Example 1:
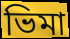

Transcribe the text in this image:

ভিমা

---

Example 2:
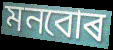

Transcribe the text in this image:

মনবোৰ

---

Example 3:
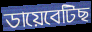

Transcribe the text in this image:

ডায়েবেটিছ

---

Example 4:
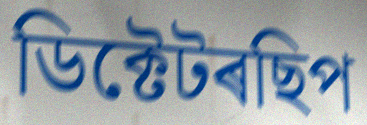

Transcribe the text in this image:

ডিক্টেটৰছিপ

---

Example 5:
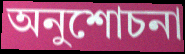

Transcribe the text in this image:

অনুশোচনা